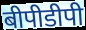
बीपीडीपी